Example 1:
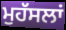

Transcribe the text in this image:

ਮੁਹੱਸਲਾਂ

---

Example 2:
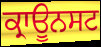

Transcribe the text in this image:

ਕ੍ਰਾਊਨਸਟ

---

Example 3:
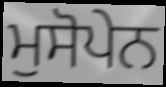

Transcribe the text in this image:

ਮੁਸੋਪੇਨ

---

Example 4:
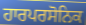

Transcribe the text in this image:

ਹਾਰਪਰਸੋਨਿਕ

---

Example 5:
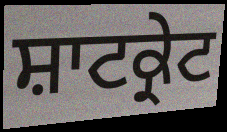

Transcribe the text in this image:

ਸ਼ਾਟਕ੍ਰੇਟ